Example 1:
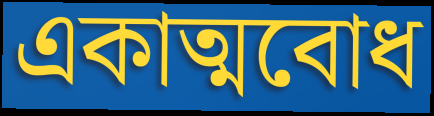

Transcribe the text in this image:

একাত্মবোধ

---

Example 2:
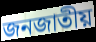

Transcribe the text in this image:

জনজাতীয়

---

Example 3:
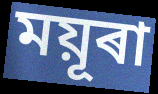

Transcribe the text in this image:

ময়ূৰা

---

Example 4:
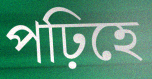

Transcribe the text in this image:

পঢ়িহে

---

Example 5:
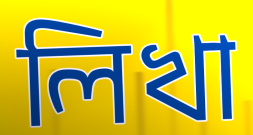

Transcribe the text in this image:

লিখা